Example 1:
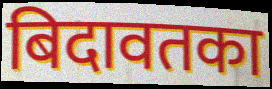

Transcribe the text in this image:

बिदावतका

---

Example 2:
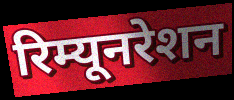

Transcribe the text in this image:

रिम्यूनरेशन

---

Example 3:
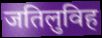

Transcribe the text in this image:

जतिलुविह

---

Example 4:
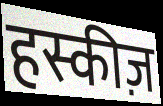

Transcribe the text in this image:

हस्कीज़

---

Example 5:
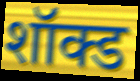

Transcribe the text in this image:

शॉक्ड